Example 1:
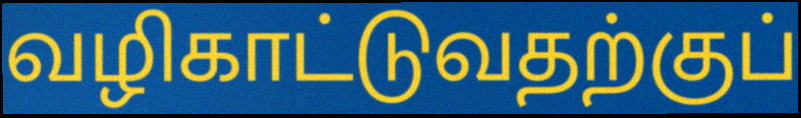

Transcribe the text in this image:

வழிகாட்டுவதற்குப்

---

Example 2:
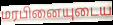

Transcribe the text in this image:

மரபினையுடைய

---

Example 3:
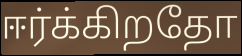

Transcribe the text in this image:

ஈர்க்கிறதோ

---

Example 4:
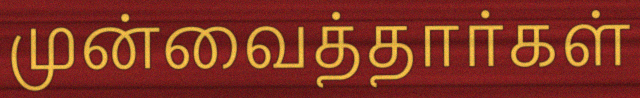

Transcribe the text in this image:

முன்வைத்தார்கள்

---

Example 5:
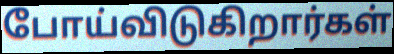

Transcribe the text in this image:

போய்விடுகிறார்கள்